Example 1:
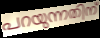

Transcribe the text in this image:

പറയുന്നതിന്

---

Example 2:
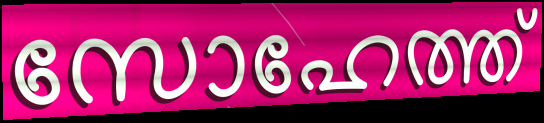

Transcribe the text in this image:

സോഹേത്ത്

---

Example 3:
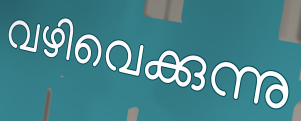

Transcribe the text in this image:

വഴിവെക്കുന്നു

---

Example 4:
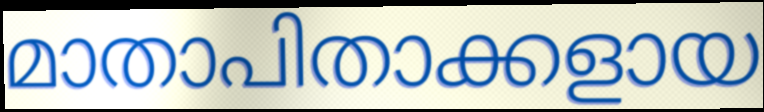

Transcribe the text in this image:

മാതാപിതാക്കളായ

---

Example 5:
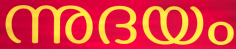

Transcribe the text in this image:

ന്നുദയം